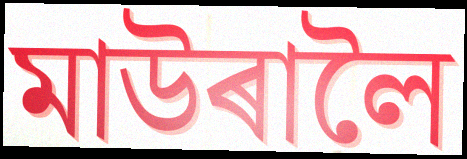
মাউৰালৈ